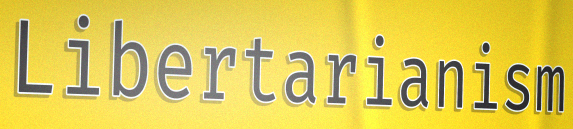
Libertarianism